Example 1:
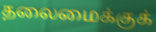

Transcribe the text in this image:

தலைமைக்குக்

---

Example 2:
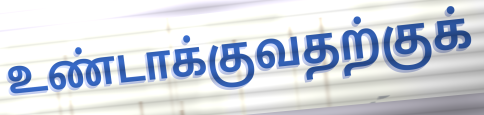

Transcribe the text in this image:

உண்டாக்குவதற்குக்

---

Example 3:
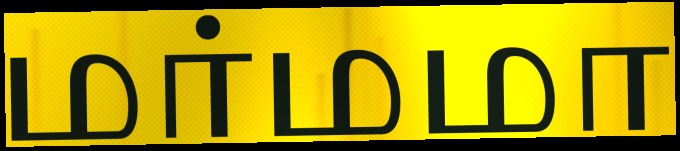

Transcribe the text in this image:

மர்மமா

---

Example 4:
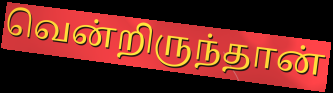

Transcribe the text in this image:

வென்றிருந்தான்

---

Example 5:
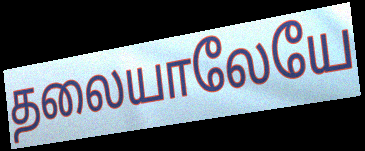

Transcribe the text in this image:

தலையாலேயே